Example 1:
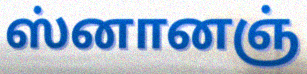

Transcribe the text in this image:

ஸ்னானஞ்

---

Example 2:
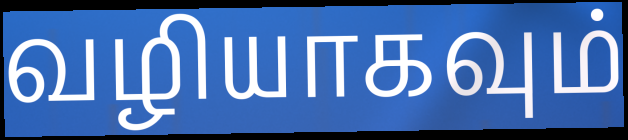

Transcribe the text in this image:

வழியாகவும்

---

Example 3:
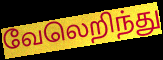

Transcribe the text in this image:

வேலெறிந்து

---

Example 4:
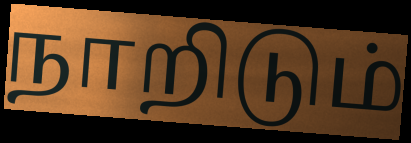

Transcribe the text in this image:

நாறிடும்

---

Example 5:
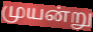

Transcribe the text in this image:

முயன்று